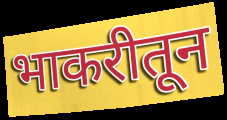
भाकरीतून